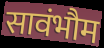
सावंभौम